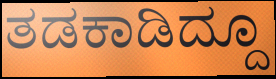
ತಡಕಾಡಿದ್ದೂ